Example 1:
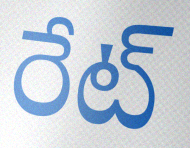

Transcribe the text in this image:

రేట్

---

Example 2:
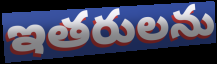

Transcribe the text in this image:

ఇతరులను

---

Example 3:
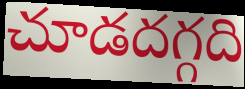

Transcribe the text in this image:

చూడదగ్గది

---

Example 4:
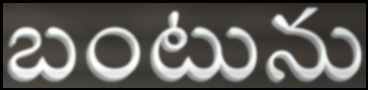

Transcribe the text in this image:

బంటును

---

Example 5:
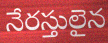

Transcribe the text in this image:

నేరస్తులైన